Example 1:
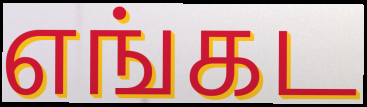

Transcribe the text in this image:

எங்கட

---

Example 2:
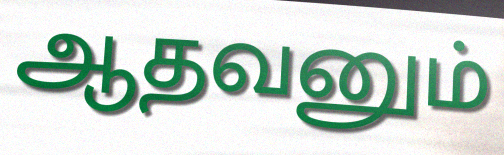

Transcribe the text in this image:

ஆதவனும்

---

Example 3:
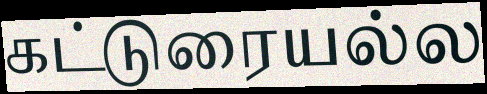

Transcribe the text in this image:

கட்டுரையல்ல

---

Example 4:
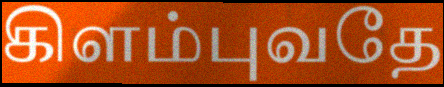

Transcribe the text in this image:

கிளம்புவதே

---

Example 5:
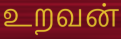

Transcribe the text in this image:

உறவன்